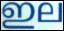
ഇല